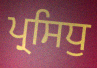
ਪ੍ਰਸਿਧੁ